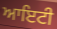
ਆਇਟੀ